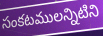
సంకటములన్నిటిని